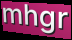
mhgr